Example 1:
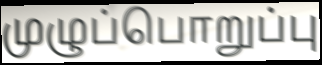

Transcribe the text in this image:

முழுப்பொறுப்பு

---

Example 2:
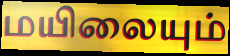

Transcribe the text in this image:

மயிலையும்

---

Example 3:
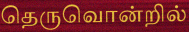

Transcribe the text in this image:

தெருவொன்றில்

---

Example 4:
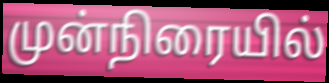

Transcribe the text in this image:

முன்நிரையில்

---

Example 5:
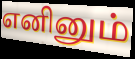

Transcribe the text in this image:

எனினும்